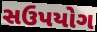
સઉપયોગ